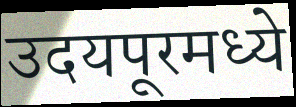
उदयपूरमध्ये